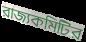
রাজ্যকমিটির